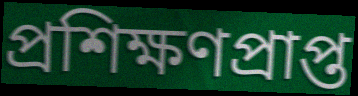
প্ৰশিক্ষণপ্ৰাপ্ত